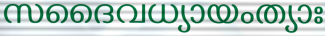
സദൈവധ്യായംത്യാഃ